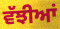
ਵੱਝੀਆਂ